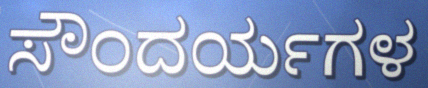
ಸೌಂದರ್ಯಗಳ